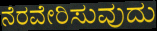
ನೆರವೇರಿಸುವುದು